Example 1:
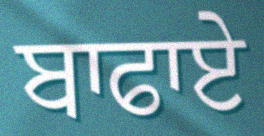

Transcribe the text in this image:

ਬਾਫਾਏ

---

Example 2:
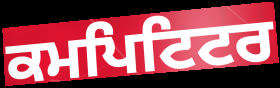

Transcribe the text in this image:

ਕਮਪਿਟਿਟਰ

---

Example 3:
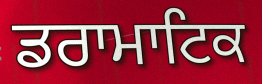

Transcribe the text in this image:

ਡਰਾਮਾਟਿਕ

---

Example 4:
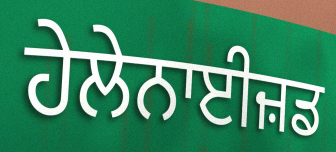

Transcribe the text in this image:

ਹੇਲੇਨਾਈਜ਼ਡ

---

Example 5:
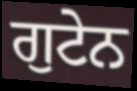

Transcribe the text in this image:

ਗੁਟੇਨ